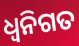
ଧ୍ୱନିଗତ